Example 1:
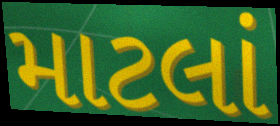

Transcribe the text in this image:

માટલાં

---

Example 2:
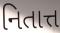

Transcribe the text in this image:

નિતાત્ત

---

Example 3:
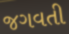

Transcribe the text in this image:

જગવતી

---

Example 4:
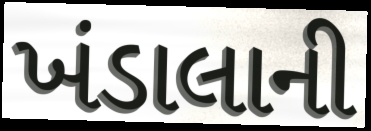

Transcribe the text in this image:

ખંડાલાની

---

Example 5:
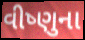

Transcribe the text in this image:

વીષ્ણુના